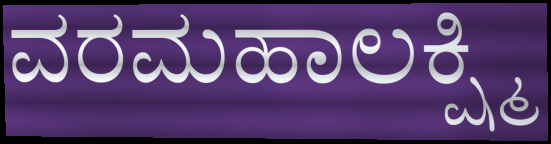
ವರಮಹಾಲಕ್ಷ್ಮಿ